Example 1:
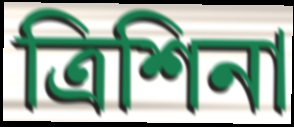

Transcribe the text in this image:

ত্রিশিনা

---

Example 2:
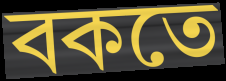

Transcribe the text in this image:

বকতে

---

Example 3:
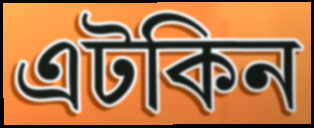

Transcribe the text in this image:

এটকিন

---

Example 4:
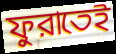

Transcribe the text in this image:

ফুরাতেই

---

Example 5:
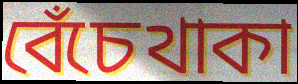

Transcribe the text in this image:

বেঁচেথাকা